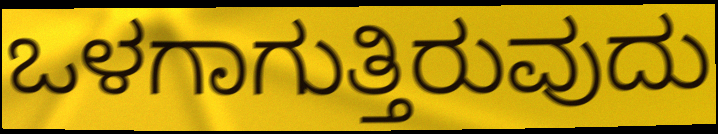
ಒಳಗಾಗುತ್ತಿರುವುದು